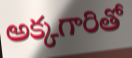
అక్కగారితో